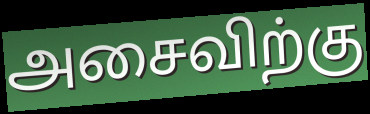
அசைவிற்கு